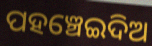
ପହଞ୍ଚେଇଦିଅ